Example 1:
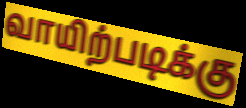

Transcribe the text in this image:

வாயிற்படிக்கு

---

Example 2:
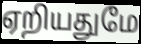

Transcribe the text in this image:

ஏறியதுமே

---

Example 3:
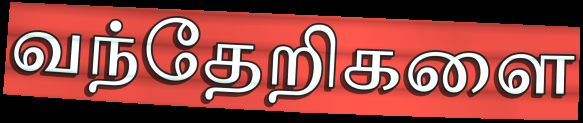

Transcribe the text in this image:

வந்தேறிகளை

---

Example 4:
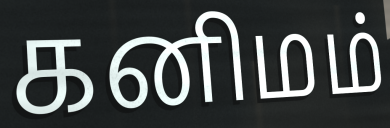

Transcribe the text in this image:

கனிமம்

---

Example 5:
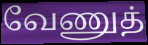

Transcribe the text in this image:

வேணுத்